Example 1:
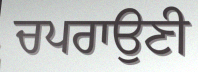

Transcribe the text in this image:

ਚਪਰਾਉਣੀ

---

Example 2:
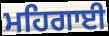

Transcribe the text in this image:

ਮਹਿਗਾਈ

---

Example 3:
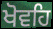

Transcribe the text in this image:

ਖੋਵਹਿ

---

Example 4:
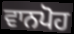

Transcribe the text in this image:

ਵਾਨਪੋਹ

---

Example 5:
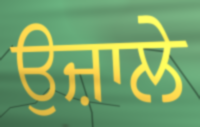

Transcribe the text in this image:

ਉਜ਼ਾਲੇ